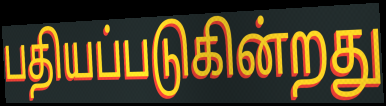
பதியப்படுகின்றது